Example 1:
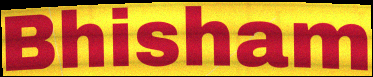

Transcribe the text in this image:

Bhisham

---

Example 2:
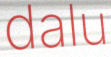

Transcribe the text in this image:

dalu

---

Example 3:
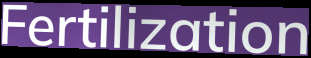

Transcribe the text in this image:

Fertilization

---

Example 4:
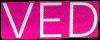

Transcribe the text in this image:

VED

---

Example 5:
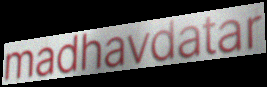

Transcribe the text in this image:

madhavdatar